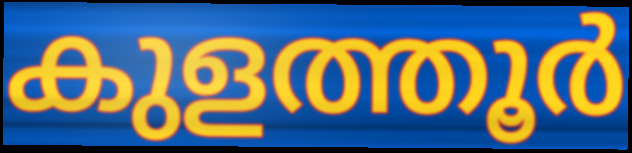
കുളത്തൂർ